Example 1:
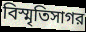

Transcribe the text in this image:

বিস্মৃতিসাগর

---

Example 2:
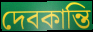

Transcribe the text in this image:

দেবকান্তি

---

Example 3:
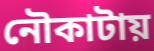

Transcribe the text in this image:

নৌকাটায়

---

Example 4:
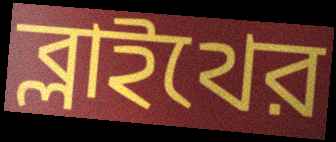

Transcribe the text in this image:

ব্লাইথের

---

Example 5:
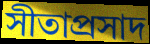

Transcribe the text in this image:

সীতাপ্রসাদ